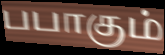
பபாகும்